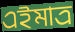
এইমাত্র